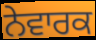
ਨੇਵਾਰਕ